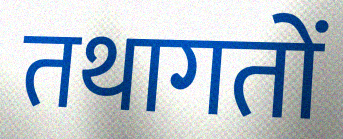
तथागतों